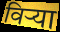
विऱ्या